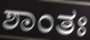
ಶಾಂತಃ